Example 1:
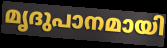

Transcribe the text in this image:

മൃദുപാനമായി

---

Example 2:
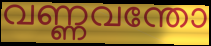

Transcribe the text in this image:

വണ്ണവന്തോ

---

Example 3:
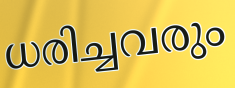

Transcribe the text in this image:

ധരിച്ചവരും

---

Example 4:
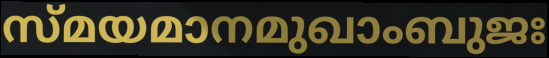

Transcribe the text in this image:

സ്മയമാനമുഖാംബുജഃ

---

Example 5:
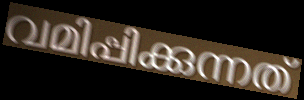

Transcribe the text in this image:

വമിപ്പിക്കുന്നത്